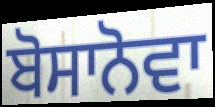
ਬੋਸਾਨੋਵਾ